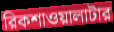
রিকশাওয়ালাটার